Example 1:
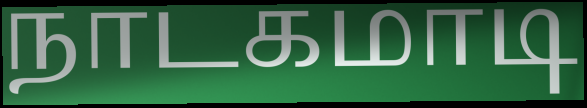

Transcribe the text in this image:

நாடகமாடி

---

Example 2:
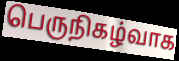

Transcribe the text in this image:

பெருநிகழ்வாக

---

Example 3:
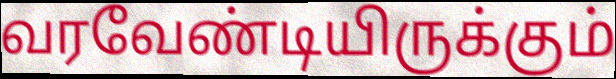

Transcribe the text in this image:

வரவேண்டியிருக்கும்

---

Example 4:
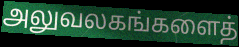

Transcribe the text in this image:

அலுவலகங்களைத்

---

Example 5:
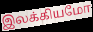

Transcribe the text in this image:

இலக்கியமோ